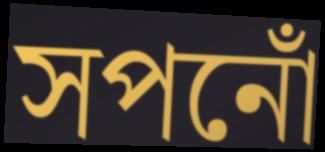
সপনোঁ